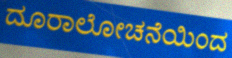
ದೂರಾಲೋಚನೆಯಿಂದ